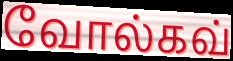
வோல்கவ்